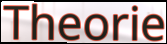
Theorie